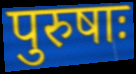
पुरुषाः